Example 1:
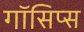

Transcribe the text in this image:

गॉसिप्स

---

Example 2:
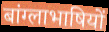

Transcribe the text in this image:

बांग्लाभाषियों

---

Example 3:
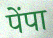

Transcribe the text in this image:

पेंपा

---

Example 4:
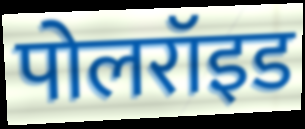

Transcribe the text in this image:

पोलरॉइड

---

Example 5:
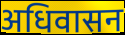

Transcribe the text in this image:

अधिवासन